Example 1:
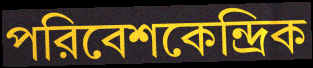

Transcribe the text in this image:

পরিবেশকেন্দ্রিক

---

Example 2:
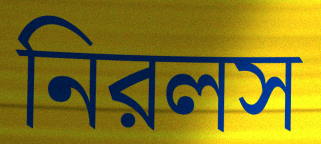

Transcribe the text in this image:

নিরলস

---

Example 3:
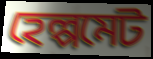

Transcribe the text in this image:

হেল্পমেট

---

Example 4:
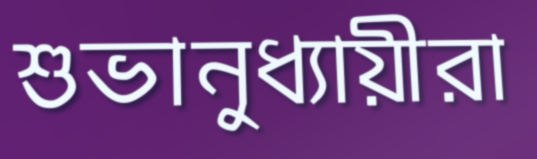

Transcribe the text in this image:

শুভানুধ্যায়ীরা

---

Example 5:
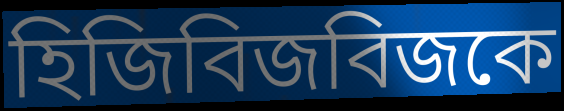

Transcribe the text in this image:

হিজিবিজবিজকে